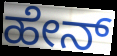
ಹೇನ್